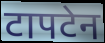
टापटेन